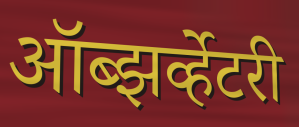
ऑब्झर्व्हेटरी